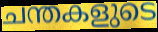
ചന്തകളുടെ